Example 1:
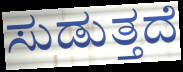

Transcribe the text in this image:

ಸುಡುತ್ತದೆ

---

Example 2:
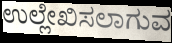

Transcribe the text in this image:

ಉಲ್ಲೇಖಿಸಲಾಗುವ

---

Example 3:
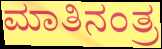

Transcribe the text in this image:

ಮಾತಿನಂತ್ರ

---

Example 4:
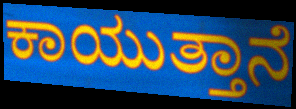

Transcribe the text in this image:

ಕಾಯುತ್ತಾನೆ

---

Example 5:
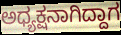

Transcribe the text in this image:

ಅಧ್ಯಕ್ಷನಾಗಿದ್ದಾಗ